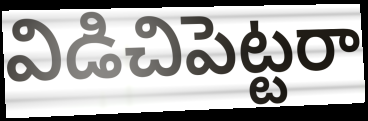
విడిచిపెట్టరా